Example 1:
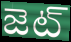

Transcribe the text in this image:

జెట్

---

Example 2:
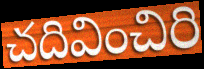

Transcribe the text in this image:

చదివించిరి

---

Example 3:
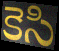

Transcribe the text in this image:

కెసి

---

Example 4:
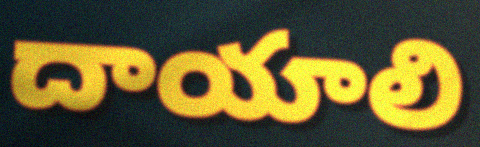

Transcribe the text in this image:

దాయాలి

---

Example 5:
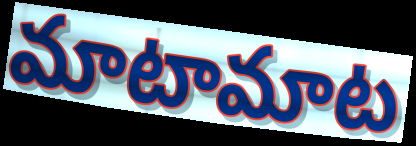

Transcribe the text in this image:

మాటామాట